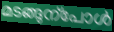
മടങ്ങുന്പോൾ